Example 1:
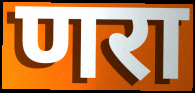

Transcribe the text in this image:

णरा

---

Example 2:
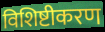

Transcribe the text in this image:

विशिष्टीकरण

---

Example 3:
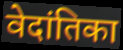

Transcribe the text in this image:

वेदांतिका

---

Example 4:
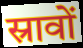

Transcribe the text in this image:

स्रावों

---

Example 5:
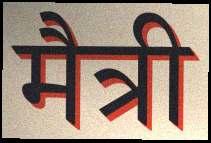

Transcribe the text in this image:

मैत्री